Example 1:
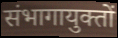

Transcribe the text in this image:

संभागायुक्तों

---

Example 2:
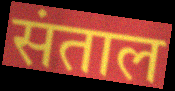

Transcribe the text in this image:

संताल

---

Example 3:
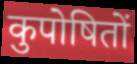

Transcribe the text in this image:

कुपोषितों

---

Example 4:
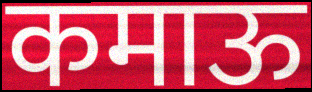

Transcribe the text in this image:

कमाऊ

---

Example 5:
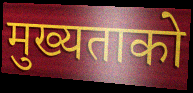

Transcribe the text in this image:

मुख्यताको